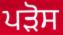
ਪੜੋਸ